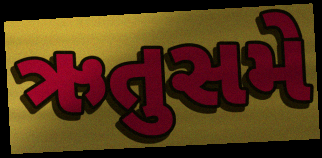
ઋતુસમે